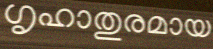
ഗൃഹാതുരമായ